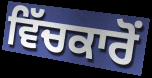
ਵਿੱਚਕਾਰੋਂ